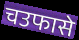
चउफासे